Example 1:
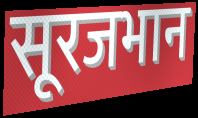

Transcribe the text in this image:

सूरजभान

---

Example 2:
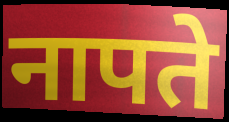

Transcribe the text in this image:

नापते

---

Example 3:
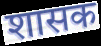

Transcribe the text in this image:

शासक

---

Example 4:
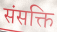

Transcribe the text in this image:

संसक्ति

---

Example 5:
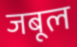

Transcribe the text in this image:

जबूल